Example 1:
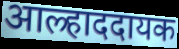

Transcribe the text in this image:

आल्हाददायक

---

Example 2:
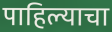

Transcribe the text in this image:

पाहिल्याचा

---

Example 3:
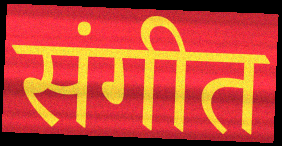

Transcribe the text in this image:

संगीत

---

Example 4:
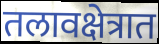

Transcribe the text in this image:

तलावक्षेत्रात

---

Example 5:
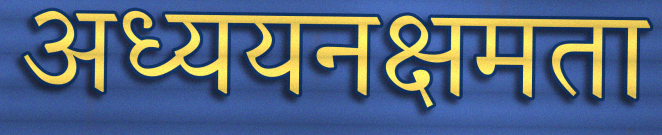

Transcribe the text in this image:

अध्ययनक्षमता